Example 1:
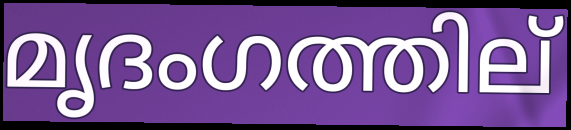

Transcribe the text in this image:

മൃദംഗത്തില്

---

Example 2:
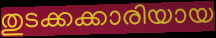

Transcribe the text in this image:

തുടക്കക്കാരിയായ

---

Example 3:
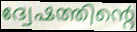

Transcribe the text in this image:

ദ്വേഷത്തിന്റെ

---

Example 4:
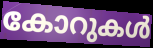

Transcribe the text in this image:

കോറുകൾ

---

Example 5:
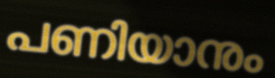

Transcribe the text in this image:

പണിയാനും